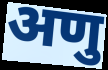
अणु